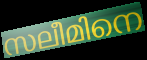
സലീമിനെ